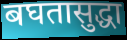
बघतासुद्धा